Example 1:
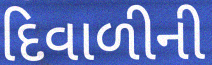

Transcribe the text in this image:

દિવાળીની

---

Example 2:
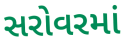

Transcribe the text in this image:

સરોવરમાં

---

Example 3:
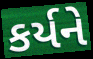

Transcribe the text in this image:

કર્યને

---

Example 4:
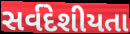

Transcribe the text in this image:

સર્વદેશીયતા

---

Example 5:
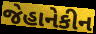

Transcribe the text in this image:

જેહાનેકીન